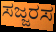
ಸಜ್ಜರಸ